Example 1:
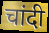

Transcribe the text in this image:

चांदी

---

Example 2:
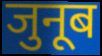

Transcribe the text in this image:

जुनूब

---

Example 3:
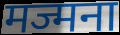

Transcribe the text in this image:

मज्मना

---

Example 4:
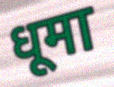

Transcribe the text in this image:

धूमा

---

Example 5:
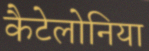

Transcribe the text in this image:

कैटेलोनिया